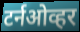
टर्नओव्हर